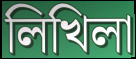
লিখিলা